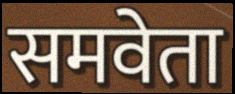
समवेता